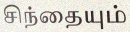
சிந்தையும்